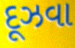
દૂઝવા